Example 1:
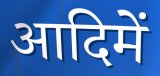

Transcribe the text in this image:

आदिमें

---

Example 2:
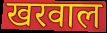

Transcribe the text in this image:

खरवाल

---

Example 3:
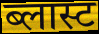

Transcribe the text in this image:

ब्लास्ट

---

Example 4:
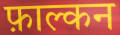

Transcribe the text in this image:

फ़ाल्कन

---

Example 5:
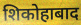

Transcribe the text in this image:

शिकोहाबाद